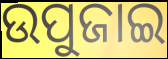
ଉପୁଜାଇ